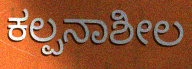
ಕಲ್ಪನಾಶೀಲ